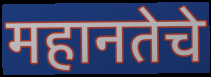
महानतेचे